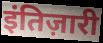
इंतिज़ारी